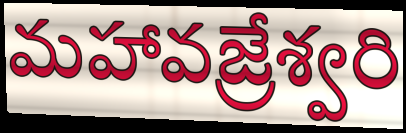
మహావజ్రేశ్వరి